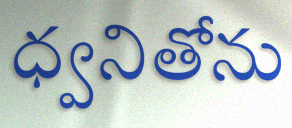
ధ్వనితోను